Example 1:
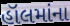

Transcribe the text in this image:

હૉલમાંના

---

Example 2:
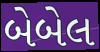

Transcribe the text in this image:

બેબેલ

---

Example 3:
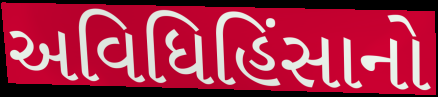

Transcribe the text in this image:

અવિધિહિંસાનો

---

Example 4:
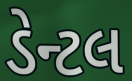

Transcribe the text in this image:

ડેન્ટલ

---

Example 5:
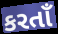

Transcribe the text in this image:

કરતાઁ